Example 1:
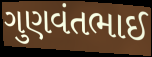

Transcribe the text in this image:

ગુણવંતભાઈ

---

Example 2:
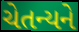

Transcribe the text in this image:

ચેતન્યને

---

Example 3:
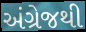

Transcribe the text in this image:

અંગ્રેજથી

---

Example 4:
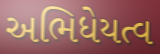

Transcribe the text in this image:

અભિધેયત્વ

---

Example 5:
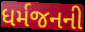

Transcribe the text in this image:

ધર્મજનની